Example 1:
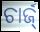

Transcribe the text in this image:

ଚାର୍ଜ୍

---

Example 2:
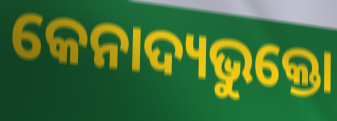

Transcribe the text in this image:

କେନାଦ୍ୟଭୁକ୍ତୋ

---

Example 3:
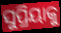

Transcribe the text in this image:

ସୁପ୍ରିୟାକୁ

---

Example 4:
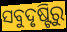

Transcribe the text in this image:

ସବୁଦୃଷ୍ଟିରୁ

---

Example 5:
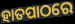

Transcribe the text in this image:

ହାତପାଠରେ